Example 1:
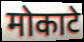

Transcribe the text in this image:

मोकाटे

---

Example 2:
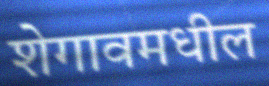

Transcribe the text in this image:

शेगावमधील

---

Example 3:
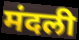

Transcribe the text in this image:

मंदली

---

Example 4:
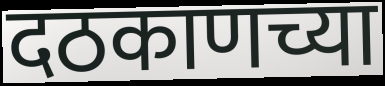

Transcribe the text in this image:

दठकाणच्या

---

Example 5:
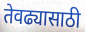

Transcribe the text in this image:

तेवढ्यासाठी